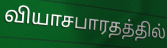
வியாசபாரதத்தில்